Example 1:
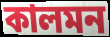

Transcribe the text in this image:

কালমন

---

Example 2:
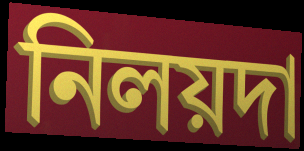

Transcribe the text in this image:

নিলয়দা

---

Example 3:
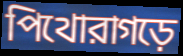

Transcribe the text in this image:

পিথোরাগড়ে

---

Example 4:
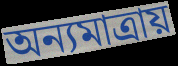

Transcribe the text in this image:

অন্যমাত্রায়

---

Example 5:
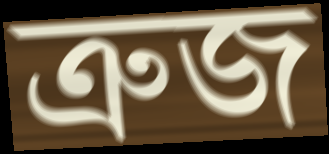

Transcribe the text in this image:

ত্রুজ